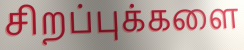
சிறப்புக்களை